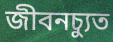
জীবনচ্যুত